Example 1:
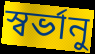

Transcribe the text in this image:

স্বর্ভানু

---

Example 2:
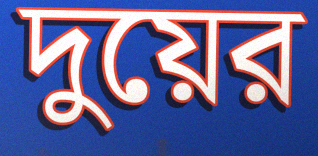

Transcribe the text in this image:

দুয়ের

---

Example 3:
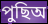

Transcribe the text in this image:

পুছিঅ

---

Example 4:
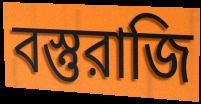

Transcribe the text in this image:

বস্তুরাজি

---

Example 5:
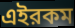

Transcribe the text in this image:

এইরকম